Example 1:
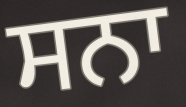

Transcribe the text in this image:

ਸਨਾ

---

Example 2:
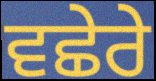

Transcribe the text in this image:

ਵਛੇਰੇ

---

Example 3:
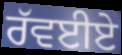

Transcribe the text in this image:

ਰੱਵਈਏ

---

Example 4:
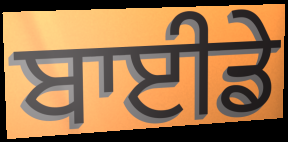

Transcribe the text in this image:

ਬਾਈਡੇ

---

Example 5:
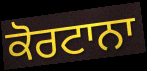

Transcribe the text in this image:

ਕੋਰਟਾਨਾ